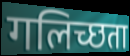
गलिच्छता